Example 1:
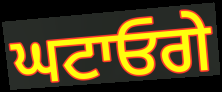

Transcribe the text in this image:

ਘਟਾਓਗੇ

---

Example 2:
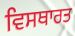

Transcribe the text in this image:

ਵਿਸਥਾਰਤ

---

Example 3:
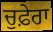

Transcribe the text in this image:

ਚੁਫ਼ੇਰਾ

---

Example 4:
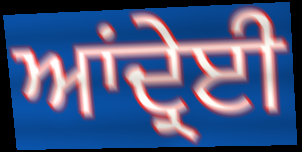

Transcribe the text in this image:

ਆਂਦ੍ਰੇਈ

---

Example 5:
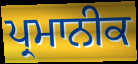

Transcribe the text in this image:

ਪ੍ਰਮਾਨੀਕ